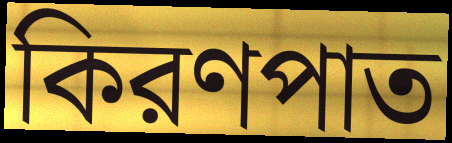
কিরণপাত